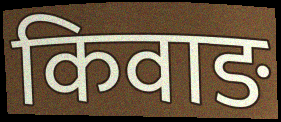
किवाङ